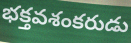
భక్తవశంకరుడు